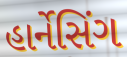
હાર્નેસિંગ